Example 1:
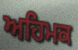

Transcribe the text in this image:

ਅਹਿਮਕ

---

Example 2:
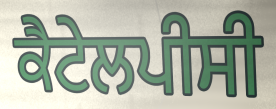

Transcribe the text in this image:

ਕੈਟੇਲਪੀਸੀ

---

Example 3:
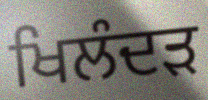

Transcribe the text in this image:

ਖਿਲੰਦੜ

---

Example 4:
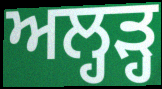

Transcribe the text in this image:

ਅਲ੍ਹੜ੍ਹ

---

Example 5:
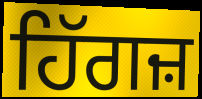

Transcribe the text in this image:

ਹਿੱਗਜ਼